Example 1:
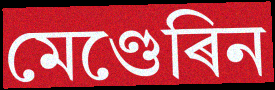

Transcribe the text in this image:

মেণ্ডেৰিন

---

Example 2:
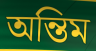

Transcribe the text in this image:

অন্তিম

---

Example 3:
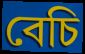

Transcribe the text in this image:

বেচি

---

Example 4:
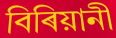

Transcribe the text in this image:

বিৰিয়ানী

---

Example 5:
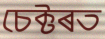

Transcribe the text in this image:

চেক্টৰত